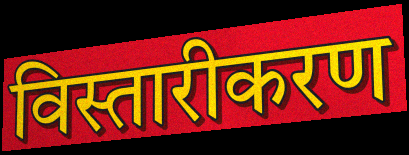
विस्तारीकरण